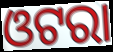
ଓଟରା